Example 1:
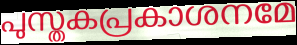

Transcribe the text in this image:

പുസ്തകപ്രകാശനമേ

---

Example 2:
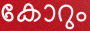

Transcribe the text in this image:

കോറും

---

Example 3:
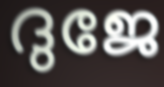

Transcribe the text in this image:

ദുജേ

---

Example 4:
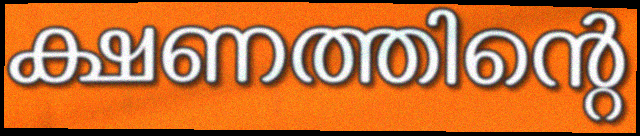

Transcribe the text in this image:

ക്ഷണത്തിന്റെ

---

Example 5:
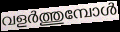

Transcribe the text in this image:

വളർത്തുമ്പോൾ